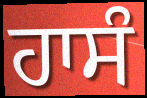
ਹਾਸੰ